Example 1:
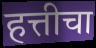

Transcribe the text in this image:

हत्तीचा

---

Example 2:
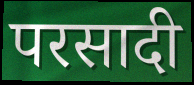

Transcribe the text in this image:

परसादी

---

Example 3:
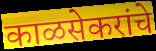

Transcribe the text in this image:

काळसेकरांचे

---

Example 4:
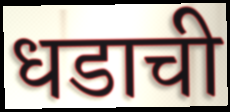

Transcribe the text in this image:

धडाची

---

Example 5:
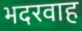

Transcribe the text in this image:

भदरवाह